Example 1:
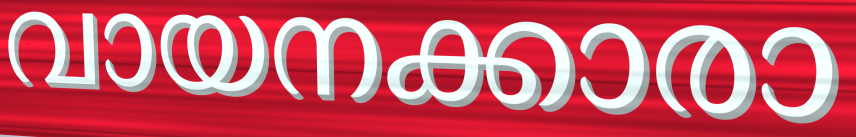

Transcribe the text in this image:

വായനക്കാരാ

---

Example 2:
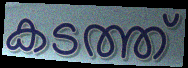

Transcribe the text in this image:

കടത്ത്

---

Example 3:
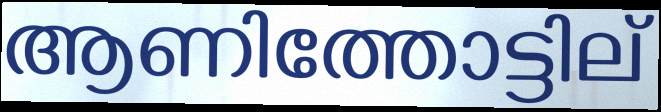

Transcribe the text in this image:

ആണിത്തോട്ടില്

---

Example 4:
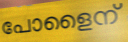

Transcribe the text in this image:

പോളൈന്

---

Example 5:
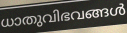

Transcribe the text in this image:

ധാതുവിഭവങ്ങൾ